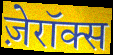
ज़ेरॉक्स